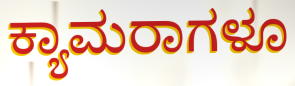
ಕ್ಯಾಮರಾಗಳೂ